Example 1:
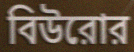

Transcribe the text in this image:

বিউরোর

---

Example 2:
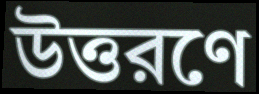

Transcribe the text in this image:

উত্তরণে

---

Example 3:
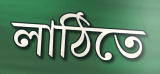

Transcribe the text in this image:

লাঠিতে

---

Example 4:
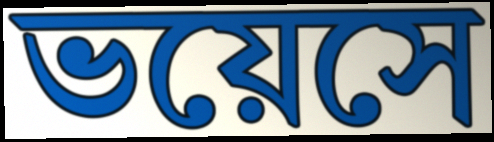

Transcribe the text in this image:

ভয়েসে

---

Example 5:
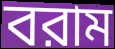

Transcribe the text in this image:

বরাম